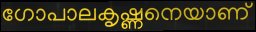
ഗോപാലകൃഷ്ണനെയാണ്